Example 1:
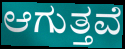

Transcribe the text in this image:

ಆಗುತ್ತವೆ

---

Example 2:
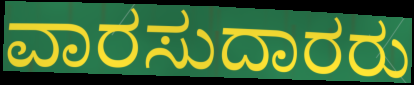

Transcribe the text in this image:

ವಾರಸುದಾರರು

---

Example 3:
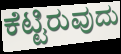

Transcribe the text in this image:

ಕೆಟ್ಟಿರುವುದು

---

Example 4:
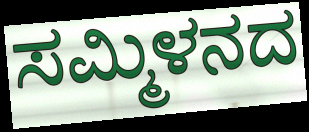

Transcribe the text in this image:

ಸಮ್ಮಿಳನದ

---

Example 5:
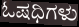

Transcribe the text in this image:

ಓಷಧಿಗಳು